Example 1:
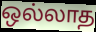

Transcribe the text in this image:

ஒல்லாத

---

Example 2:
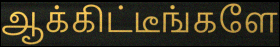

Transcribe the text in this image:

ஆக்கிட்டீங்களே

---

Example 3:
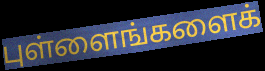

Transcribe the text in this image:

புள்ளைங்களைக்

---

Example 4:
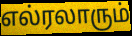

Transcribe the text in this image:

எல்ரலாரும்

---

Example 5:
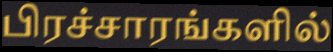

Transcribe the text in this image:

பிரச்சாரங்களில்